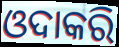
ଓଦାକରି